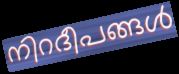
നിറദീപങ്ങൾ